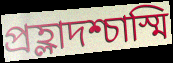
প্রহ্লাদশ্চাস্মি